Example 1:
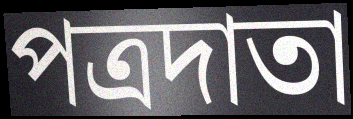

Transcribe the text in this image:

পত্রদাতা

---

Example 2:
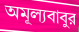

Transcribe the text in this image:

অমূল্যবাবুর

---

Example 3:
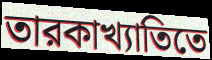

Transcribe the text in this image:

তারকাখ্যাতিতে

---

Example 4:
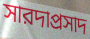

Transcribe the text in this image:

সারদাপ্রসাদ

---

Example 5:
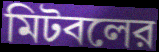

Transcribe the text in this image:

মিটবলের